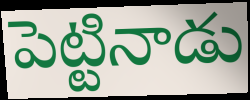
పెట్టినాడు